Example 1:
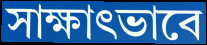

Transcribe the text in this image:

সাক্ষাৎভাবে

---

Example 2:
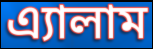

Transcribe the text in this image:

এ্যালাম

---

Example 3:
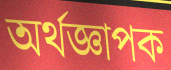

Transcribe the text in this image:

অর্থজ্ঞাপক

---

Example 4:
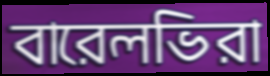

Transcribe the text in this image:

বারেলভিরা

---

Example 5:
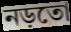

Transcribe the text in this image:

নড়তো